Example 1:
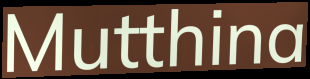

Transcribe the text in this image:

Mutthina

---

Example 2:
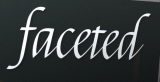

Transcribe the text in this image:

faceted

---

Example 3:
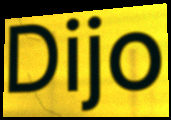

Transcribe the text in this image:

Dijo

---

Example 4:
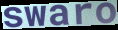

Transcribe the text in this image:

swaro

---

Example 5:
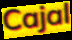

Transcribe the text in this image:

Cajal